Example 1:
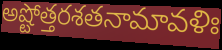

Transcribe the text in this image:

అష్టోత్తరశతనామావళిః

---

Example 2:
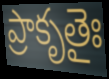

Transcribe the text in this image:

ప్రాకృతైః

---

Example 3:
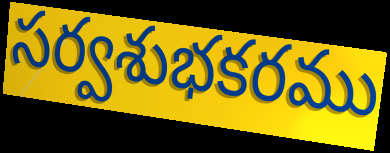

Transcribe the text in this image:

సర్వశుభకరము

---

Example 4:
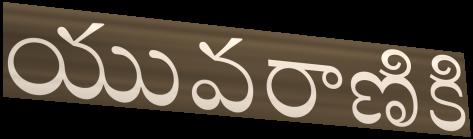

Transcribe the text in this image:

యువరాణికి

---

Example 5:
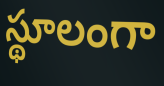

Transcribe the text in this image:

స్థూలంగా